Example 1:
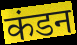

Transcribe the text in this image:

कंडन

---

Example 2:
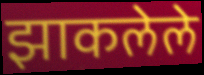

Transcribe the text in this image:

झाकलेले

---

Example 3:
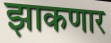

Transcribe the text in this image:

झाकणार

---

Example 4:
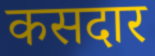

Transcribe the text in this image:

कसदार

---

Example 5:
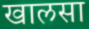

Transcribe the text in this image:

खालसा